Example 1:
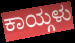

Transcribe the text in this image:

ಕಾಯ್ಗಳು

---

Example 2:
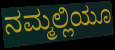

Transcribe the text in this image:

ನಮ್ಮಲ್ಲಿಯೂ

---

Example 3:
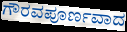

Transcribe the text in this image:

ಗೌರವಪೂರ್ಣವಾದ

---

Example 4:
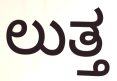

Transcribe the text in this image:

ಲುತ್ತ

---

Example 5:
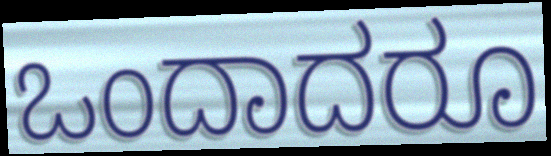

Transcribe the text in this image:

ಒಂದಾದರೂ